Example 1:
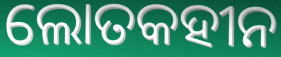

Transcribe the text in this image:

ଲୋତକହୀନ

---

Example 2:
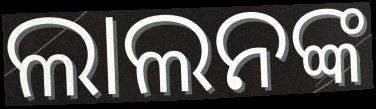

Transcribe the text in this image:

ଲାଲନଙ୍କ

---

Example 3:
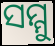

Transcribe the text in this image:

ସମ୍ମୁ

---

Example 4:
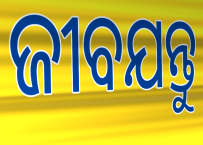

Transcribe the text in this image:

ଜୀବଯନ୍ତୁ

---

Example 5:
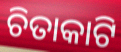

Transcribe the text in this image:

ଚିତାକାଟି